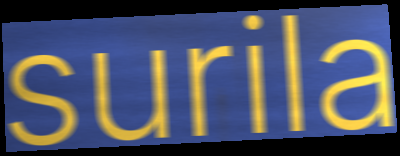
surila